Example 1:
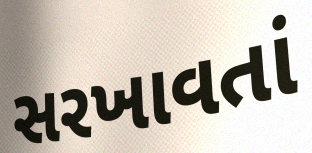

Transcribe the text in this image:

સરખાવતાં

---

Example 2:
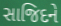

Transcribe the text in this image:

સાજિદને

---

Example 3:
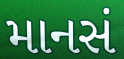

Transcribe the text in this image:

માનસં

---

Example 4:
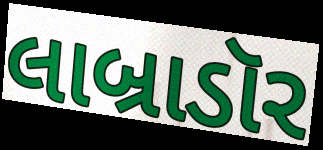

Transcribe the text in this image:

લાબ્રાડૉર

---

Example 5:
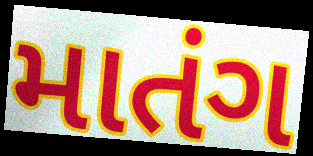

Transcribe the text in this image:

માતંગ